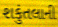
શકુંતલાની